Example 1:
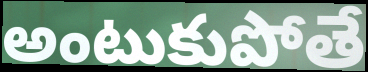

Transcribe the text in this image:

అంటుకుపోతే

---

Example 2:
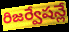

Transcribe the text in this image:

రిజర్వేషన్లే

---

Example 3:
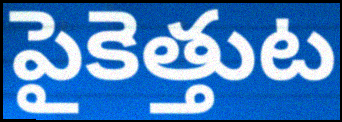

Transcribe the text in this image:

పైకెత్తుట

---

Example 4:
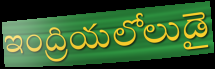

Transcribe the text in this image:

ఇంద్రియలోలుడై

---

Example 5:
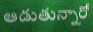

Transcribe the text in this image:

ఆడుతున్నారో